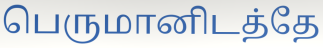
பெருமானிடத்தே